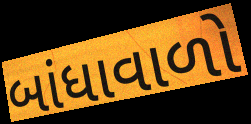
બાંધાવાળો